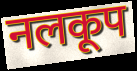
नलकूप